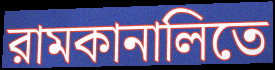
রামকানালিতে